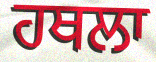
ਹਥਲਾ